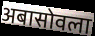
अबासोवला